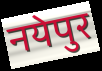
नयेपुर